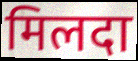
मिलदा